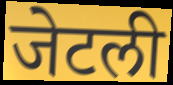
जेटली